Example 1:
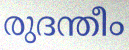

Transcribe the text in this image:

രുദന്തീം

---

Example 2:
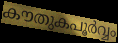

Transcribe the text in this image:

കൗതുകപൂർവ്വം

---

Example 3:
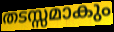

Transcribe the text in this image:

തടസ്സമാകും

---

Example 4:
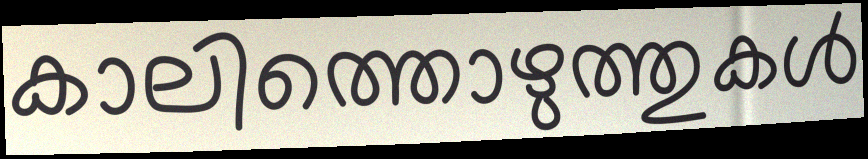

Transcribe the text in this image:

കാലിത്തൊഴുത്തുകൾ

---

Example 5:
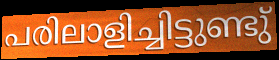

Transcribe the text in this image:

പരിലാളിച്ചിട്ടുണ്ടു്